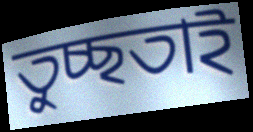
তুচ্ছতাই